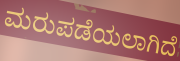
ಮರುಪಡೆಯಲಾಗಿದೆ